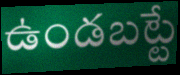
ఉండబట్టే